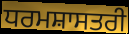
ਧਰਮਸ਼ਾਸਤਰੀ